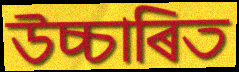
উচ্চাৰিত